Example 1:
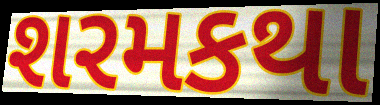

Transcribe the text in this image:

શરમકથા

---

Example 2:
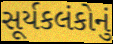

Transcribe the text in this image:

સૂર્યકલંકોનું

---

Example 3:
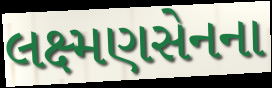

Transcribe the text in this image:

લક્ષ્મણસેનના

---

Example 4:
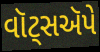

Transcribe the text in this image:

વૉટ્સઍપે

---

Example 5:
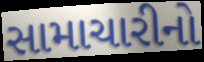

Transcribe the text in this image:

સામાચારીનો